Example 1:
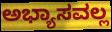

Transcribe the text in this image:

ಅಭ್ಯಾಸವಲ್ಲ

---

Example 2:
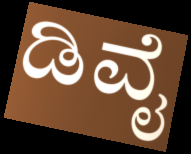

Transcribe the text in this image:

ಡಿವೈ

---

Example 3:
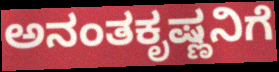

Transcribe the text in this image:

ಅನಂತಕೃಷ್ಣನಿಗೆ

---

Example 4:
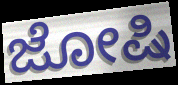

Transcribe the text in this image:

ಜೋಷಿ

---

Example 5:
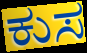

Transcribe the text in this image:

ಕುಸ